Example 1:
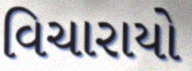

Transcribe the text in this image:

વિચારાયો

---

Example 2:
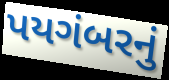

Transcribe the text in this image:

પયગંબરનું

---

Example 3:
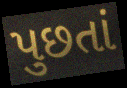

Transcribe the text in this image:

પુછતાં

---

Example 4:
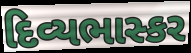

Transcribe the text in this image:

દિવ્યભાસ્કર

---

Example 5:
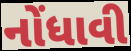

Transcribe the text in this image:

નોંધાવી